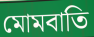
মোমবাতি